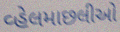
વ્હેલમાછલીઓ